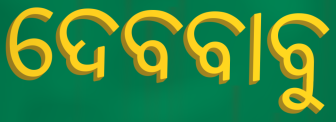
ଦେବବାବୁ